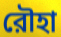
রৌহা